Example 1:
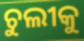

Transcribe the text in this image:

ଚୁଲୀକୁ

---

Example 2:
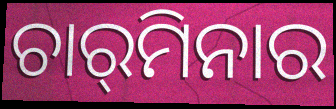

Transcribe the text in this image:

ଚାର୍‌ମିନାର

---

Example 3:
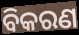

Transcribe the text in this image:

ବିକରଣ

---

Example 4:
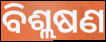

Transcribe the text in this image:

ବିଶ୍ଲଷଣ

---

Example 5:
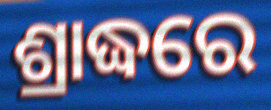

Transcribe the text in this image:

ଶ୍ରାଦ୍ଧରେ